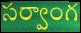
సర్వాంగ